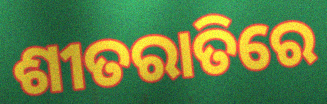
ଶୀତରାତିରେ